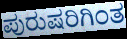
ಪುರುಷರಿಗಿಂತ